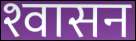
श्वासन